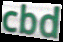
cbd